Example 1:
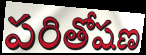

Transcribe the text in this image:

పరితోషణ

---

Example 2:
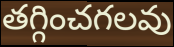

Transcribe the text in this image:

తగ్గించగలవు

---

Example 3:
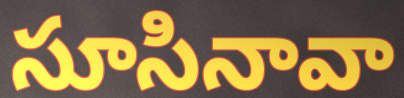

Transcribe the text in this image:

సూసినావా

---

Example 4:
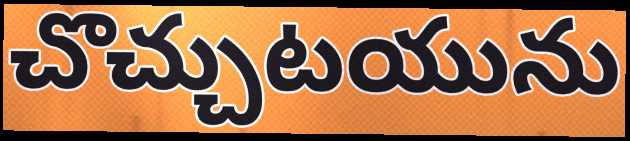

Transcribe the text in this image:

చొచ్చుటయును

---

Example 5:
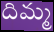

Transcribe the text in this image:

దిమ్మ